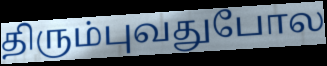
திரும்புவதுபோல